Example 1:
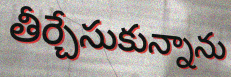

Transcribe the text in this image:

తీర్చేసుకున్నాను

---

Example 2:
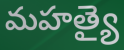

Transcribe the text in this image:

మహత్యై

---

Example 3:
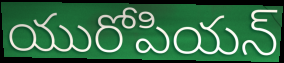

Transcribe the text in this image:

యురోపియన్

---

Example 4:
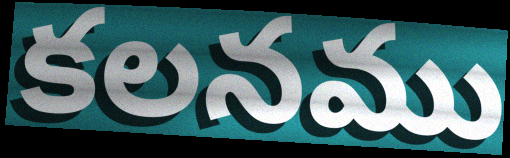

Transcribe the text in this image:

కలనము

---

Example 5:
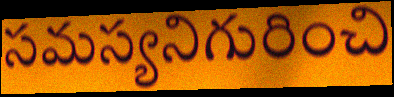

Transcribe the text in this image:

సమస్యనిగురించి